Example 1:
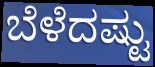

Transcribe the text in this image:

ಬೆಳೆದಷ್ಟು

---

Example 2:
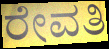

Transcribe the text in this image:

ರೇವತಿ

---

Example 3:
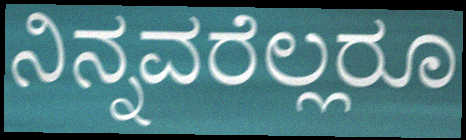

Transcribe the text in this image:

ನಿನ್ನವರೆಲ್ಲರೂ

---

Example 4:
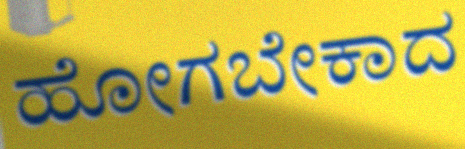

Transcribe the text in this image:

ಹೋಗಬೇಕಾದ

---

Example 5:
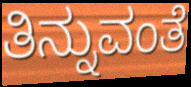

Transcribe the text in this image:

ತಿನ್ನುವಂತೆ